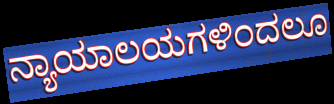
ನ್ಯಾಯಾಲಯಗಳಿಂದಲೂ